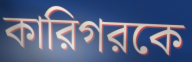
কারিগরকে